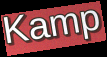
Kamp